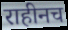
राहीनच